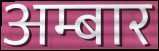
अम्बार